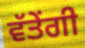
ਵੱਤੇਂਗੀ